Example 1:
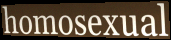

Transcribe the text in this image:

homosexual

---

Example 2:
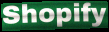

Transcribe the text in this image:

Shopify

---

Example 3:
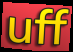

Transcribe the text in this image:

uff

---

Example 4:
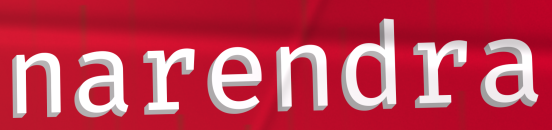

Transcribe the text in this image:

narendra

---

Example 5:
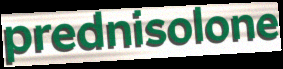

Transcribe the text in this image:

prednisolone